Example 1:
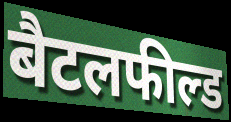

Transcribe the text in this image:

बैटलफील्ड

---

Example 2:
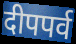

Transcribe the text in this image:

दीपपर्व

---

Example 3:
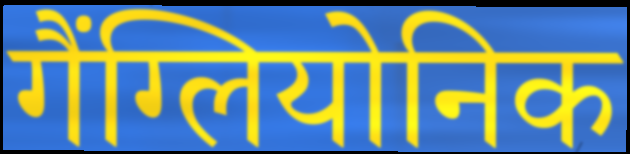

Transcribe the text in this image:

गैंग्लियोनिक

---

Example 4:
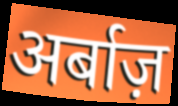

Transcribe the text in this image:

अर्बाज़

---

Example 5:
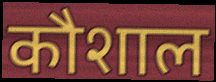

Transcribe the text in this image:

कौशाल